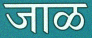
जाळ